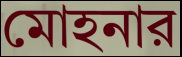
মোহনার